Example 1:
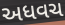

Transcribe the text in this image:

અધવચ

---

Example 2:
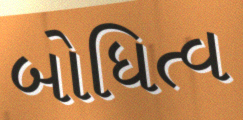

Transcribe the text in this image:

બોધિત્વ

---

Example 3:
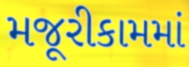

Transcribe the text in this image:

મજૂરીકામમાં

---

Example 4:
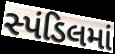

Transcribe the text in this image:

સ્પંડિલમાં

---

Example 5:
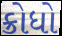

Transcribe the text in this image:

ક્રોધો